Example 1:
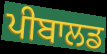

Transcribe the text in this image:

ਪੀਬਾਲਡ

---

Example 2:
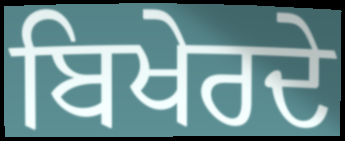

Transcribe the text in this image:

ਬਿਖੇਰਦੇ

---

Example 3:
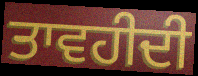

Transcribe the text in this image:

ਤਾਵਹੀਦੀ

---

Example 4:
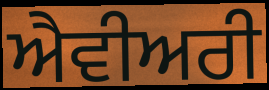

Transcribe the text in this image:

ਐਵੀਅਰੀ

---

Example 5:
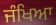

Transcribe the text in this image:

ਜੰਖਿਆ